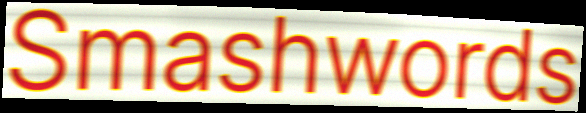
Smashwords